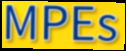
MPEs